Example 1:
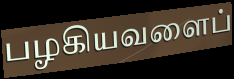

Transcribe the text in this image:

பழகியவளைப்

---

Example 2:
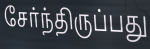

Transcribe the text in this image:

சேர்ந்திருப்பது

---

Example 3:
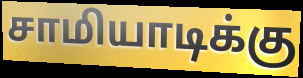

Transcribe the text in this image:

சாமியாடிக்கு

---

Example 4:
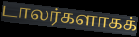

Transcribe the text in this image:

டாலர்களாகக்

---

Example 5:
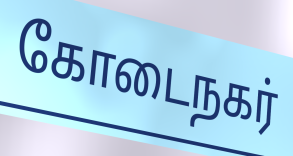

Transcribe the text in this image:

கோடைநகர்